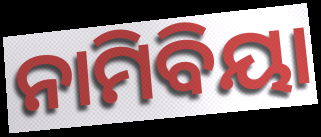
ନାମିବିୟା